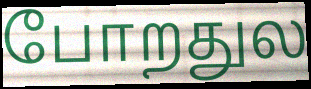
போறதுல